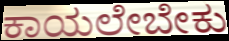
ಕಾಯಲೇಬೇಕು